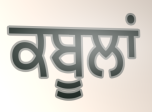
ਕਬੂਲਾਂ